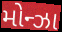
મોન્ઝા